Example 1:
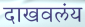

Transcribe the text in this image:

दाखवलंय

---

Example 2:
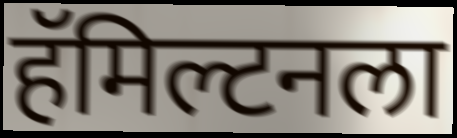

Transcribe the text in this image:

हॅमिल्टनला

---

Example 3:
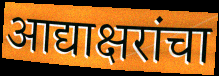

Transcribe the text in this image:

आद्याक्षरांचा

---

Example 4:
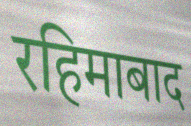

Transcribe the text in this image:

रहिमाबाद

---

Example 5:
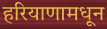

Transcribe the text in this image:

हरियाणामधून